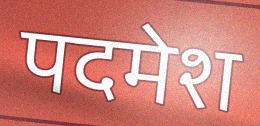
पदमेश